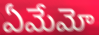
ఏమేమో